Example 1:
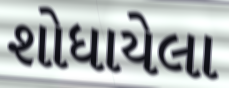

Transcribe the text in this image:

શોધાયેલા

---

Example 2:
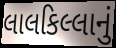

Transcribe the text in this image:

લાલકિલ્લાનું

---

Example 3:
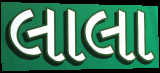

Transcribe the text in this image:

લાલા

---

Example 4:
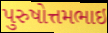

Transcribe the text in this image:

પુરુષોત્તમભાઇ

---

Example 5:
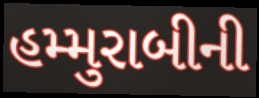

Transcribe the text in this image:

હમ્મુરાબીની